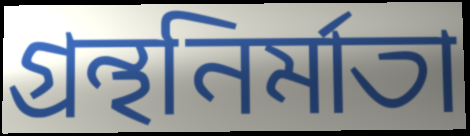
গ্রন্থনির্মাতা